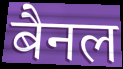
बैनल